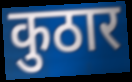
कुठार